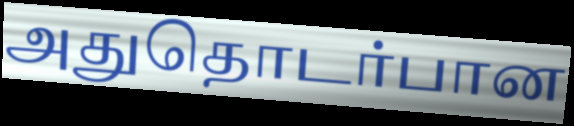
அதுதொடர்பான